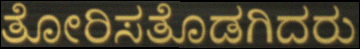
ತೋರಿಸತೊಡಗಿದರು